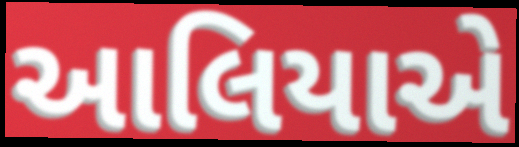
આલિયાએ